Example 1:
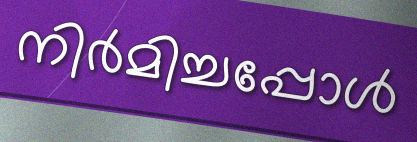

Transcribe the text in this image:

നിർമിച്ചപ്പോൾ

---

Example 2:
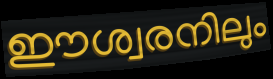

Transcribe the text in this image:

ഈശ്വരനിലും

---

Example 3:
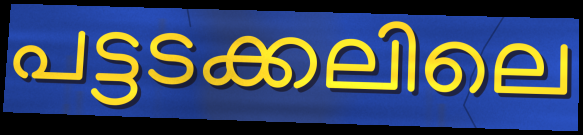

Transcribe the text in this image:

പട്ടടക്കലിലെ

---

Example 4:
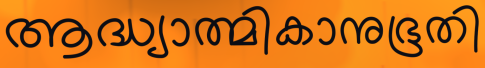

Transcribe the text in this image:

ആദ്ധ്യാത്മികാനുഭൂതി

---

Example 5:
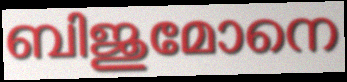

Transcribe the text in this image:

ബിജുമോനെ